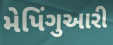
મેપિંગુઆરી